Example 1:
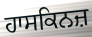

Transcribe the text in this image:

ਹਾਸਕਿਨਜ਼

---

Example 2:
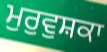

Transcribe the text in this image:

ਮੁਰੁਵੁਸ਼ਕਾ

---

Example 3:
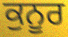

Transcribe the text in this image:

ਕੁਨੂਰ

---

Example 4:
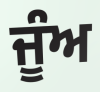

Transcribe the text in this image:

ਜੂੰਅ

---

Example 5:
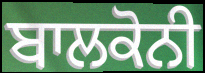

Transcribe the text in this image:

ਬਾਲਕੋਨੀ